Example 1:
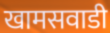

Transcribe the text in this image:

खामसवाडी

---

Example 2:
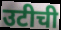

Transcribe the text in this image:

उटीची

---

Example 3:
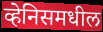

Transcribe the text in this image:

व्हेनिसमधील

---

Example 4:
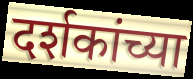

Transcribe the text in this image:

दर्शकांच्या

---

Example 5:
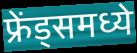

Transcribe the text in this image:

फ्रेंड्समध्ये